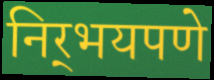
निर्भयपणे